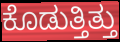
ಕೊಡುತ್ತಿತ್ತು